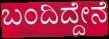
ಬಂದಿದ್ದೇನೆ